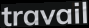
travail